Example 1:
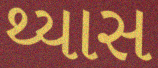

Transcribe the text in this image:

થ્યાસ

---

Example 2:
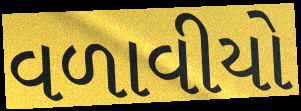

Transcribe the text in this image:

વળાવીયો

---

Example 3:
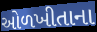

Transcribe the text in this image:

ઓળખીતાના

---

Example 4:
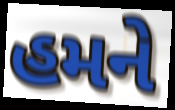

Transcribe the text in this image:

હમને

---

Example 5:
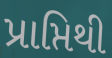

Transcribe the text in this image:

પ્રાપ્તિથી